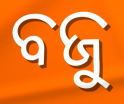
ବଜୁ